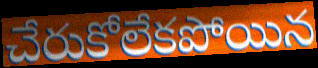
చేరుకోలేకపోయిన